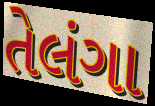
તેલંગા